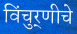
विंचुर्णीचे